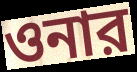
ওনার